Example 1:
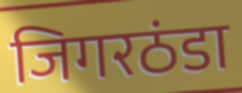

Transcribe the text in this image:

जिगरठंडा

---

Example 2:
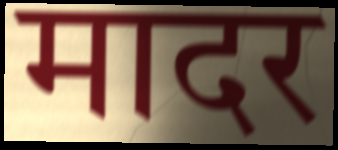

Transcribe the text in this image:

मादर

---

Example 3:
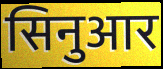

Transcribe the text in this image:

सिनुआर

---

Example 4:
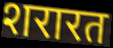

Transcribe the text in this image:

शरारत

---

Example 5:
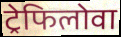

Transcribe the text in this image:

ट्रेफिलोवा